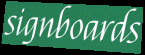
signboards